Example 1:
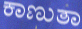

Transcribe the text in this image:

ಕಾಣುತಾ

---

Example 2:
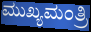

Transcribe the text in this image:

ಮುಖ್ಯಮಂತ್ರಿ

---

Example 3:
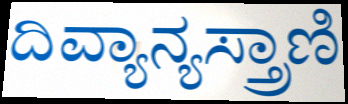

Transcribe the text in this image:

ದಿವ್ಯಾನ್ಯಸ್ತ್ರಾಣಿ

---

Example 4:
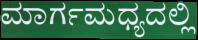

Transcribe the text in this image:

ಮಾರ್ಗಮಧ್ಯದಲ್ಲಿ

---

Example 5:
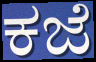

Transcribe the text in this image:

ಕಜೆ